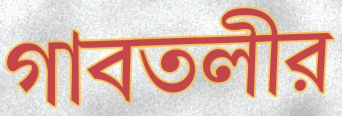
গাবতলীর